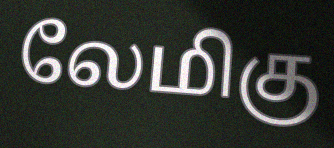
லேமிகு